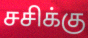
சசிக்கு